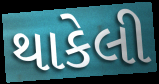
થાકેલી